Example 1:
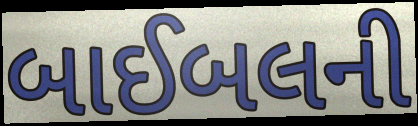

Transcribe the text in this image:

બાઈબલની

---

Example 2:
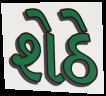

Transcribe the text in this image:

શેઠે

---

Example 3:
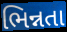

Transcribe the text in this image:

ભિન્નતા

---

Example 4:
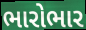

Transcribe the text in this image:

ભારોભાર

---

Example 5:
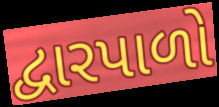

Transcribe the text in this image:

દ્વારપાળો